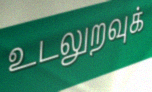
உடலுறவுக்